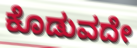
ಕೊಡುವದೇ